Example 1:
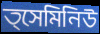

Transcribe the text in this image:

ত্সেমিনিউ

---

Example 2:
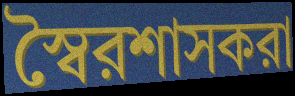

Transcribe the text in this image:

স্বৈরশাসকরা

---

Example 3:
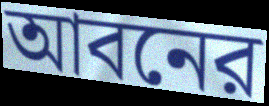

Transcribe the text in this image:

আবনের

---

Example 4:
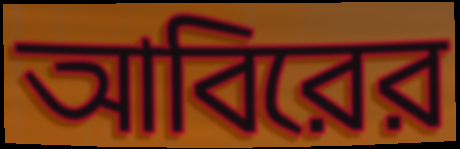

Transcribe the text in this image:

আবিরের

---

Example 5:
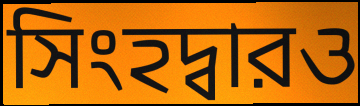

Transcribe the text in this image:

সিংহদ্বারও